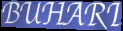
BUHARI